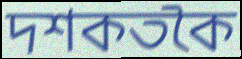
দশকতকৈ